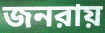
জনরায়